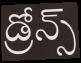
డ్రోన్స్